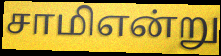
சாமிஎன்று